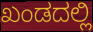
ಖಂಡದಲ್ಲಿ